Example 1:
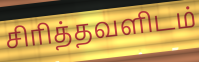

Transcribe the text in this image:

சிரித்தவளிடம்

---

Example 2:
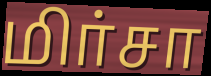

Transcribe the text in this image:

மிர்சா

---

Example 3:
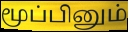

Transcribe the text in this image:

மூப்பினும்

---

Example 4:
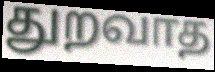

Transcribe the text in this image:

துறவாத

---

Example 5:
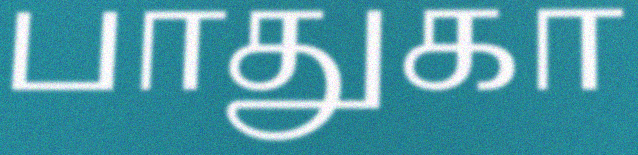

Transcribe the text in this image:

பாதுகா